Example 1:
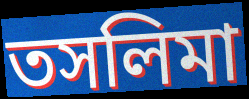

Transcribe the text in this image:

তসলিমা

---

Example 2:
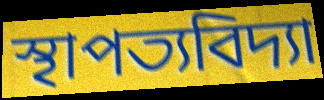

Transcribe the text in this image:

স্থাপত্যবিদ্যা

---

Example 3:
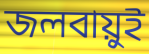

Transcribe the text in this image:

জলবায়ুই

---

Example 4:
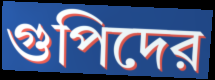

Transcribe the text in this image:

গুপিদের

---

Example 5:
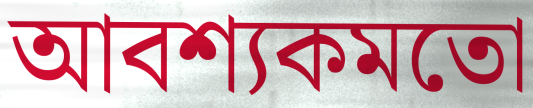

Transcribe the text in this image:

আবশ্যকমতো